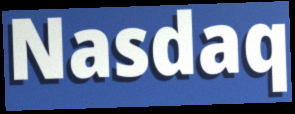
Nasdaq